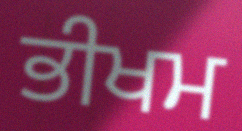
ਭੀਖਮ